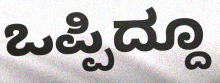
ಒಪ್ಪಿದ್ದೂ